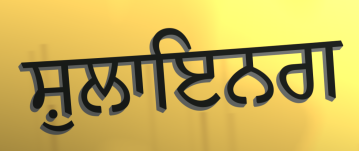
ਸ਼ੁਲਾਇਨਗ